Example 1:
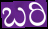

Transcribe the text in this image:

ಬರಿ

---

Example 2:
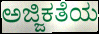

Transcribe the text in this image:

ಅಜ್ಜಿಕತೆಯ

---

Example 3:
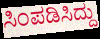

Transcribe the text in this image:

ಸಿಂಪಡಿಸಿದ್ದು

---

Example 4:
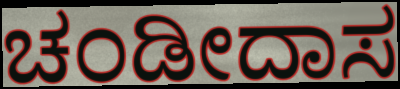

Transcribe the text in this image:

ಚಂಡೀದಾಸ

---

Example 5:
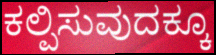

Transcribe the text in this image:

ಕಲ್ಪಿಸುವುದಕ್ಕೂ